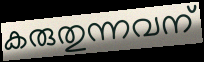
കരുതുന്നവന്